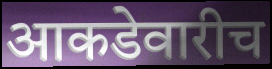
आकडेवारीच